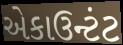
એકાઉન્ટંટ